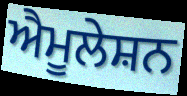
ਐਮੂਲੇਸ਼ਨ